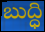
బుద్ధి